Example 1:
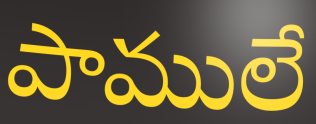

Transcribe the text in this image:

పాములే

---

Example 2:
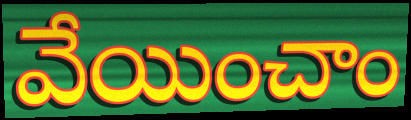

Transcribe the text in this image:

వేయించాం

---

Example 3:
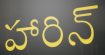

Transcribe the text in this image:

హారిన్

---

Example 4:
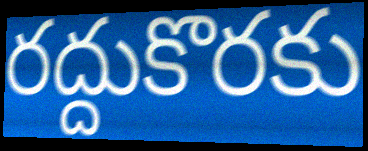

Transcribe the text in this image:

రద్దుకొరకు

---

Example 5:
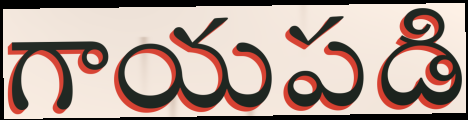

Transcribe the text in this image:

గాయపడి